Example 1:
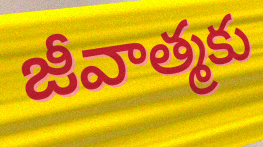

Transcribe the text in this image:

జీవాత్మకు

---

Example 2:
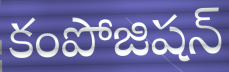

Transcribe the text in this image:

కంపోజిషన్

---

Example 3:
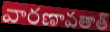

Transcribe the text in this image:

వారణావతాత్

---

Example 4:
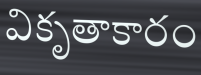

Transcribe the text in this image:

వికృతాకారం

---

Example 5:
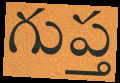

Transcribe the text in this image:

గుప్త